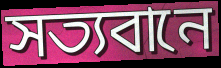
সত্যবানে